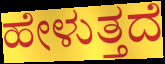
ಹೇಳುತ್ತದೆ